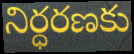
నిర్ధరణకు